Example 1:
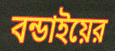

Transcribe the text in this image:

বন্ডাইয়ের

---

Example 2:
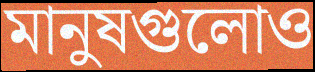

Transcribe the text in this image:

মানুষগুলোও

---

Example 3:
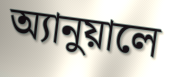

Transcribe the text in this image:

অ্যানুয়ালে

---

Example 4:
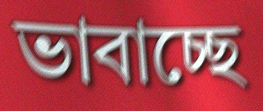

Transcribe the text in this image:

ভাবাচ্ছে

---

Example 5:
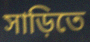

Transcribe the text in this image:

সাড়িতে